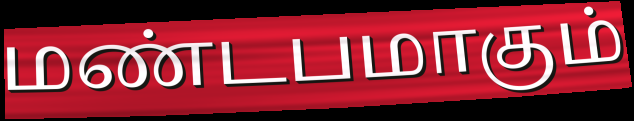
மண்டபமாகும்